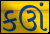
કઊં